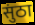
सुंठा